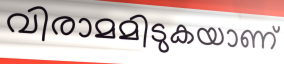
വിരാമമിടുകയാണ്